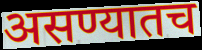
असण्यातच